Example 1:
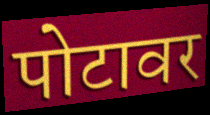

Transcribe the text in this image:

पोटावर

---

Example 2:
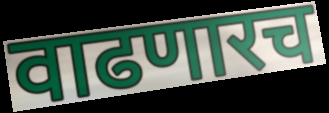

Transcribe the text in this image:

वाढणारच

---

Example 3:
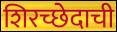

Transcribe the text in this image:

शिरच्छेदाची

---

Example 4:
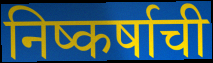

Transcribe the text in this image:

निष्कर्षाची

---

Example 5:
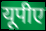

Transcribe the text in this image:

यूपीए